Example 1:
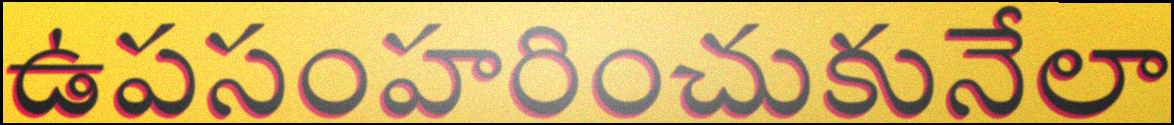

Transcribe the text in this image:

ఉపసంహరించుకునేలా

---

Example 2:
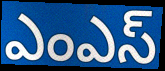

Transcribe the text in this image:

ఎంఎస్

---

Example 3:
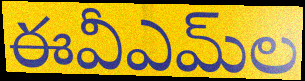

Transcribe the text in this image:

ఈవీఎమ్‌ల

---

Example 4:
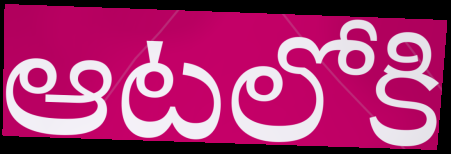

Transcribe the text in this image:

ఆటలోకి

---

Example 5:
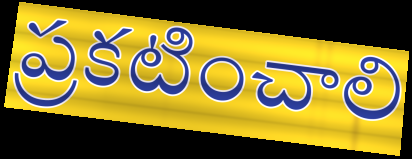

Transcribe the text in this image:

ప్రకటించాలి